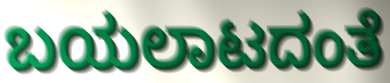
ಬಯಲಾಟದಂತೆ